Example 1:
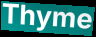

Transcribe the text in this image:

Thyme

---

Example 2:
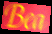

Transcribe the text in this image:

Bea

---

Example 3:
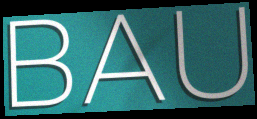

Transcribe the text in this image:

BAU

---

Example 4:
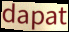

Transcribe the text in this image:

dapat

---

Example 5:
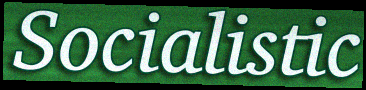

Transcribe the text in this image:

Socialistic